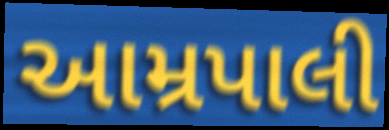
આમ્રપાલી